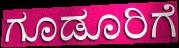
ಗೂಡೂರಿಗೆ